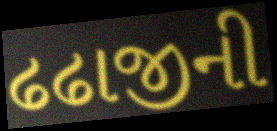
ઢઢાજીની